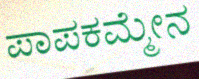
ಪಾಪಕಮ್ಮೇನ